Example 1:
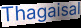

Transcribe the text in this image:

Thagaisal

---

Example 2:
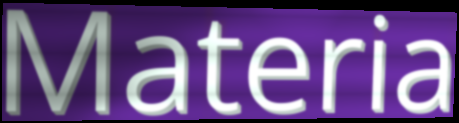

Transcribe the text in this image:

Materia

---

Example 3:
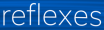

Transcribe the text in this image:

reflexes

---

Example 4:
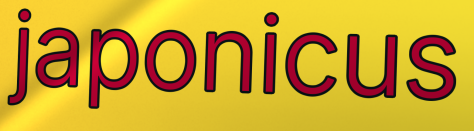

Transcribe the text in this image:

japonicus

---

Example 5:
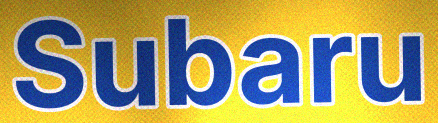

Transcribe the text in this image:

Subaru